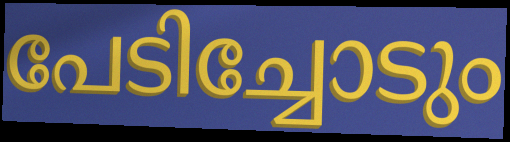
പേടിച്ചോടും